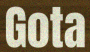
Gota